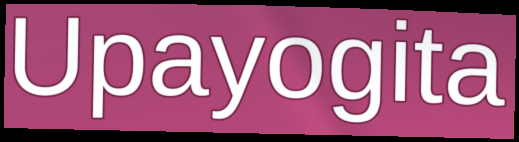
Upayogita